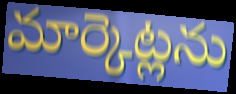
మార్కెట్లను